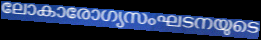
ലോകാരോഗ്യസംഘടനയുടെ